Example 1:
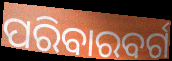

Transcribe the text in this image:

ପରିବାରବର୍ଗ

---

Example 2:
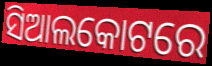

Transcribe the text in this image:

ସିଆଲକୋଟରେ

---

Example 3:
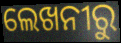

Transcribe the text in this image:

ଲେଖନୀରୁ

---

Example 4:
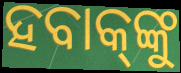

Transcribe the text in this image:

ହବାକ୍‌ଙ୍କୁ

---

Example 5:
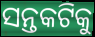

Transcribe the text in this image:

ସନ୍ତକଟିକୁ